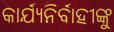
କାର୍ଯ୍ୟନିର୍ବାହୀଙ୍କୁ